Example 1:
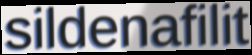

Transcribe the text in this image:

sildenafilit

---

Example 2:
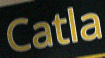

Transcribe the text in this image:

Catla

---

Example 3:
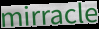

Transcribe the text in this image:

mirracle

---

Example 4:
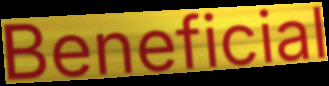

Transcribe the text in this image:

Beneficial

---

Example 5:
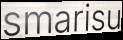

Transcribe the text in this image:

smarisu